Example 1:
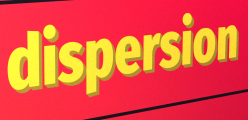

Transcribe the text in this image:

dispersion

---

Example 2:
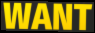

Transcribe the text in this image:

WANT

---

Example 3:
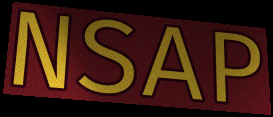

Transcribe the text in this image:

NSAP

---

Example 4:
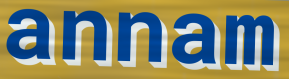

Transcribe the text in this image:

annam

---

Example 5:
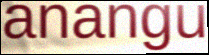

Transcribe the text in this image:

anangu